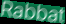
Rabbat